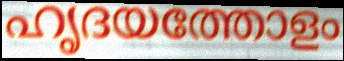
ഹൃദയത്തോളം